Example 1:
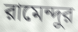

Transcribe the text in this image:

রামেন্দুর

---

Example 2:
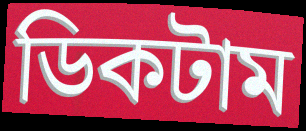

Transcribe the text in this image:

ডিকটাম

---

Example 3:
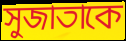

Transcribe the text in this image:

সুজাতাকে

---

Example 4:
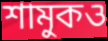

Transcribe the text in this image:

শামুকও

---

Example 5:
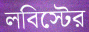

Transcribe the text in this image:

লবিস্টের